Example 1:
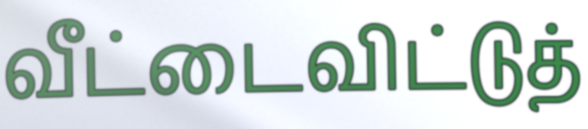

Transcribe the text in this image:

வீட்டைவிட்டுத்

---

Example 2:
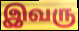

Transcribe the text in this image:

இவரு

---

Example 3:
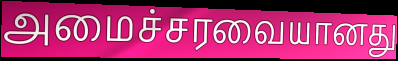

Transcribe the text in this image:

அமைச்சரவையானது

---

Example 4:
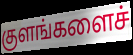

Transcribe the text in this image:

குளங்களைச்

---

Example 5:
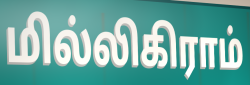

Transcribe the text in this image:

மில்லிகிராம்